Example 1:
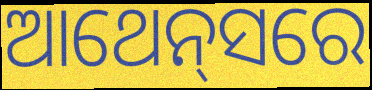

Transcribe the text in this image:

ଆଥେନ୍‍ସରେ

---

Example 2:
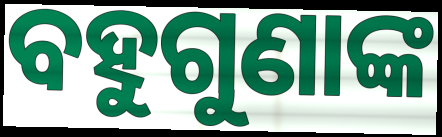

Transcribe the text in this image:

ବହୁଗୁଣାଙ୍କ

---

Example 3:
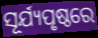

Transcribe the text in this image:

ସୂର୍ଯ୍ୟପୃଷ୍ଠରେ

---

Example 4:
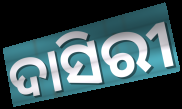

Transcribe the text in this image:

ଦାସିରୀ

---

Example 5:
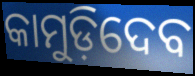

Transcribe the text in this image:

କାମୁଡ଼ିଦେବ